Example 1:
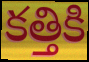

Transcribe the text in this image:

కత్తికి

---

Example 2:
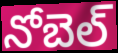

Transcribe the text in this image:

నోబెల్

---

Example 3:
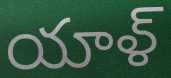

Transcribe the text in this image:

యాళ్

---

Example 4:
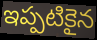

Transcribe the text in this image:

ఇప్పటికైన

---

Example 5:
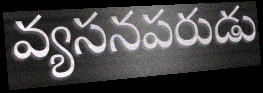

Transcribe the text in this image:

వ్యసనపరుడు